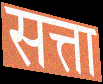
सत्ता